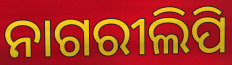
ନାଗରୀଲିପି